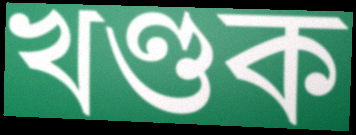
খণ্ডক